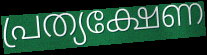
പ്രത്യക്ഷേണ